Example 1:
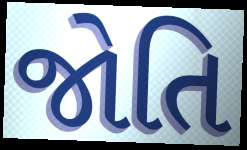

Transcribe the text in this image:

જોતિ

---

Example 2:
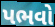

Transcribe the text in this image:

પભવો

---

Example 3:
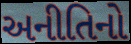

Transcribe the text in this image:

અનીતિનો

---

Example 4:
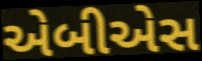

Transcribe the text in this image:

એબીએસ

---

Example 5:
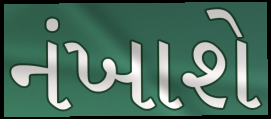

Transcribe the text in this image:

નંખાશે